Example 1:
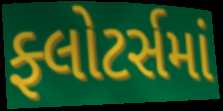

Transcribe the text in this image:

ફ્લોટર્સમાં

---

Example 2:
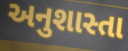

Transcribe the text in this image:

અનુશાસ્તા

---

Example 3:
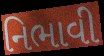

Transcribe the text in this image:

નિભાવી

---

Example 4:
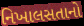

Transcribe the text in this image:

નિખાલસતાનો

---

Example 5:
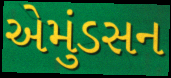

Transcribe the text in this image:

એમુંડસન